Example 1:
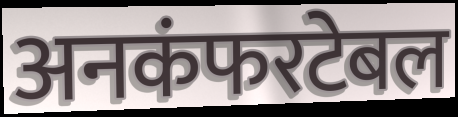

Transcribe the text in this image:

अनकंफरटेबल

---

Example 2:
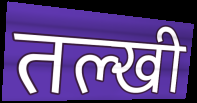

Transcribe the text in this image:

तल्‍खी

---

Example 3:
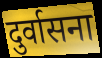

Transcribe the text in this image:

दुर्वासना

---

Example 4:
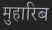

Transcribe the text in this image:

मुहारिब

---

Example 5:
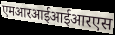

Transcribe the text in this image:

एमआरआईआईआरएस